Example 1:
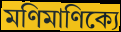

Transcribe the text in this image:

মণিমাণিক্যে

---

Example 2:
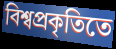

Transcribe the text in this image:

বিশ্বপ্রকৃতিতে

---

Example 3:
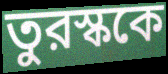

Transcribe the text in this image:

তুরস্ককে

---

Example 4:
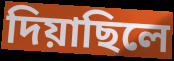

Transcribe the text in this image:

দিয়াছিলে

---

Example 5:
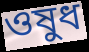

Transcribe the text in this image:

ওষুধ